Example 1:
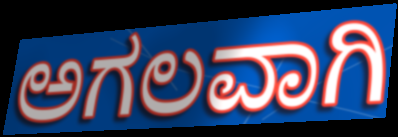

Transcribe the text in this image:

ಅಗಲವಾಗಿ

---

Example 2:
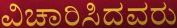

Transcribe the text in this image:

ವಿಚಾರಿಸಿದವರು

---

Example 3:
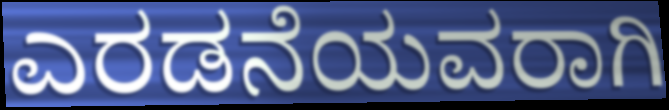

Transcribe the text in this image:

ಎರಡನೆಯವರಾಗಿ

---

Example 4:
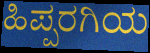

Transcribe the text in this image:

ಹಿಪ್ಪರಗಿಯ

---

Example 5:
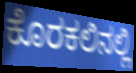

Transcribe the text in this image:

ಕೊರಕಲಿನಲ್ಲಿ